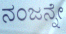
ನಂಜನ್ನೇ